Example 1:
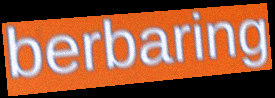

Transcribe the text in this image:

berbaring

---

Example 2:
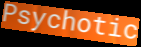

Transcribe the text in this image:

Psychotic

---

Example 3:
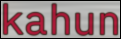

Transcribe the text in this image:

kahun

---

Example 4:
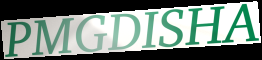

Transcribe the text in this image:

PMGDISHA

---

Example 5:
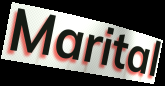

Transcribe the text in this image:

Marital